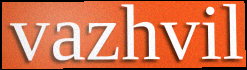
vazhvil